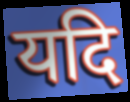
यदि